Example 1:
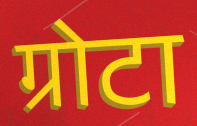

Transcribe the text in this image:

ग्रोटा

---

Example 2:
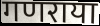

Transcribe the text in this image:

गणराया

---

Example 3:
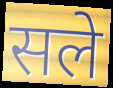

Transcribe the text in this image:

सले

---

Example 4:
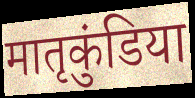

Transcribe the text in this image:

मातृकुंडिया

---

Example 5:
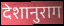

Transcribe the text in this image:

देशानुराग